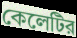
কেলেটির